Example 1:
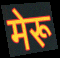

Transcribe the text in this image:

मेरू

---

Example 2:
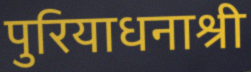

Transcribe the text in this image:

पुरियाधनाश्री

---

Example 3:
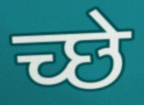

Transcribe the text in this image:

च्छे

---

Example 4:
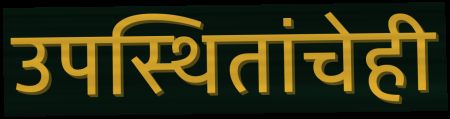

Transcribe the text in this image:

उपस्थितांचेही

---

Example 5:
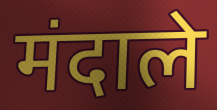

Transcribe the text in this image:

मंदाले